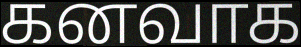
கனவாக